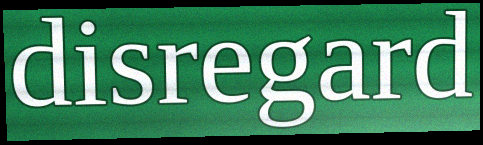
disregard